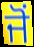
ਜੋਂ